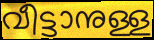
വീട്ടാനുള്ള